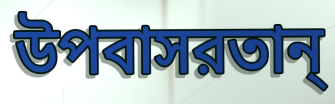
উপবাসরতান্